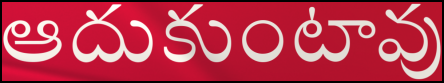
ఆదుకుంటావు